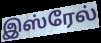
இஸ்ரேல்